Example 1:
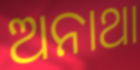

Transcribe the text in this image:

ଅନାଥା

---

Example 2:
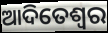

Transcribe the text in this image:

ଆଦିତେଶ୍ଵର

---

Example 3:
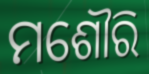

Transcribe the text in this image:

ମଶୌରି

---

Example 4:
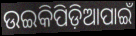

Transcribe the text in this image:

ଉଇକିପିଡ଼ିଆପାଇଁ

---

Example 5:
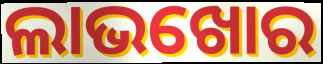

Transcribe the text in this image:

ଲାଭଖୋର